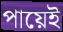
পায়েই